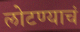
लोटण्याचं